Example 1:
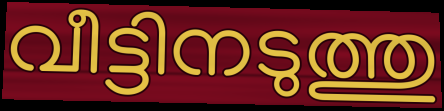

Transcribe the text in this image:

വീട്ടിനടുത്തു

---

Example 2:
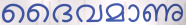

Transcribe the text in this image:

ദൈവമാണു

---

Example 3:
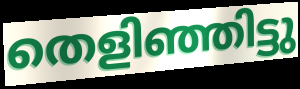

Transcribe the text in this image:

തെളിഞ്ഞിട്ടു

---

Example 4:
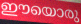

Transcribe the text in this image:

ഈയൊരു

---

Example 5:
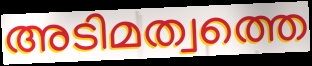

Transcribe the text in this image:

അടിമത്വത്തെ